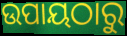
ଉପାୟଠାରୁ